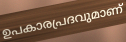
ഉപകാരപ്രദവുമാണ്